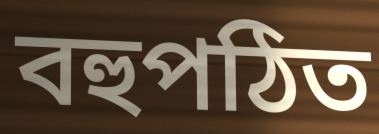
বহুপঠিত